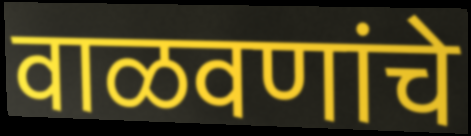
वाळवणांचे